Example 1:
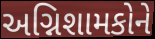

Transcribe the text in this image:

અગ્નિશામકોને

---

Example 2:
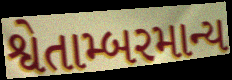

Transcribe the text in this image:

શ્વેતામ્બરમાન્ય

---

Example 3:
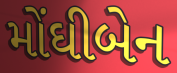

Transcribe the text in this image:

મોંઘીબેન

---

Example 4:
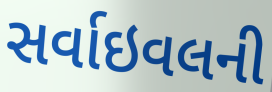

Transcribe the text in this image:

સર્વાઇવલની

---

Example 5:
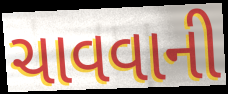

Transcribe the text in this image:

ચાવવાની